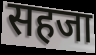
सहजा